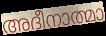
അദീനാത്മാ